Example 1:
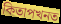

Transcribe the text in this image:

কিতাপখনত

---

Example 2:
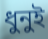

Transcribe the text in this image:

ধুনুই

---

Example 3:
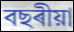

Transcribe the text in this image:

বছৰীয়া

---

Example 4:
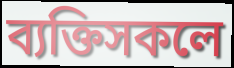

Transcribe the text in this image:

ব্যক্তিসকলে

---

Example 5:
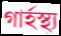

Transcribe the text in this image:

গাৰ্হস্থ্য